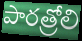
పారత్రోలి